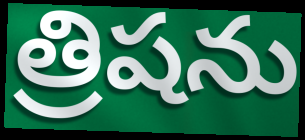
త్రిషను